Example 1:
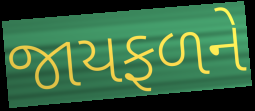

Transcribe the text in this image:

જાયફળને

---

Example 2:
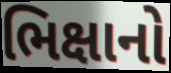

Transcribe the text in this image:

ભિક્ષાનો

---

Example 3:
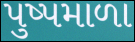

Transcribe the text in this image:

પુષ્પમાળા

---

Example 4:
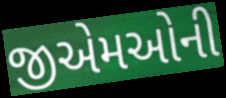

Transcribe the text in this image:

જીએમઓની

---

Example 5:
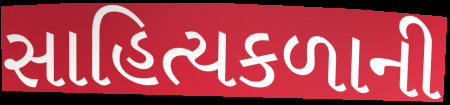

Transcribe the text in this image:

સાહિત્યકળાની